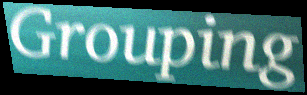
Grouping